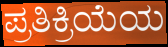
ಪ್ರತಿಕ್ರಿಯೆಯ